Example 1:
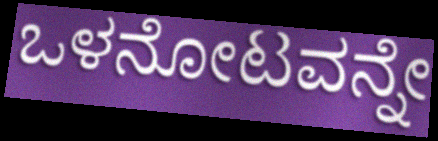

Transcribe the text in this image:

ಒಳನೋಟವನ್ನೇ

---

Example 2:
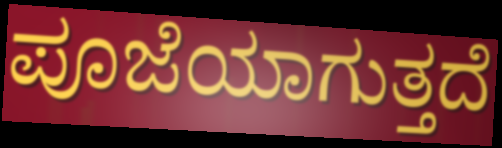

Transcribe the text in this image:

ಪೂಜೆಯಾಗುತ್ತದೆ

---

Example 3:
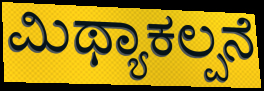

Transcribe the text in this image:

ಮಿಥ್ಯಾಕಲ್ಪನೆ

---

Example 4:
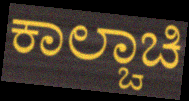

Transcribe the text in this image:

ಕಾಲ್ಚಾಚಿ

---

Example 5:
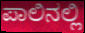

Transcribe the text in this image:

ಪಾಲಿನಲ್ಲಿ